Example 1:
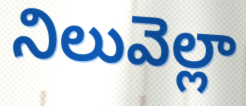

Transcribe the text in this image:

నిలువెల్లా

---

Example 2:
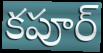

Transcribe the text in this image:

కపూర్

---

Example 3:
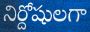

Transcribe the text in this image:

నిర్దోషులగా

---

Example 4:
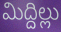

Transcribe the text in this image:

మిద్దిల్లు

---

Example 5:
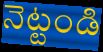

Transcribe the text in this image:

నెట్టండి